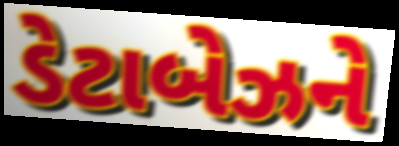
ડેટાબેઝને